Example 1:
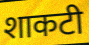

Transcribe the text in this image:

शाकटी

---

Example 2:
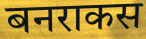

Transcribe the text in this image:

बनराकस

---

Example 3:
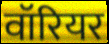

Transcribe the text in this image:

वॉरियर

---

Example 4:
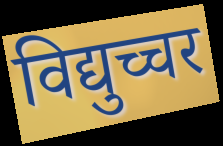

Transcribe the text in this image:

विद्युच्चर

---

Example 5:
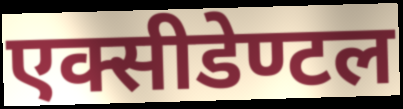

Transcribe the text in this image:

एक्सीडेण्टल